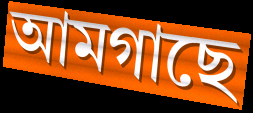
আমগাছে